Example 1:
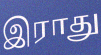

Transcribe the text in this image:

இராது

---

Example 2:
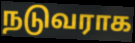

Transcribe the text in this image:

நடுவராக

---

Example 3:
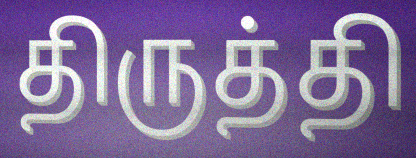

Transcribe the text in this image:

திருத்தி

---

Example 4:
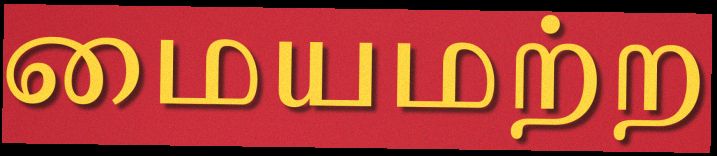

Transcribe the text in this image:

மையமற்ற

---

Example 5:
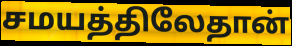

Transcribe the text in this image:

சமயத்திலேதான்